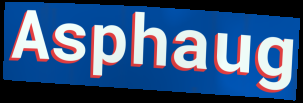
Asphaug